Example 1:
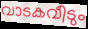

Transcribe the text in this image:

വാടകവീടും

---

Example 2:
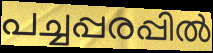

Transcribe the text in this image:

പച്ചപ്പരപ്പിൽ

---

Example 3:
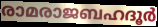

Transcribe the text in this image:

രാമരാജബഹദൂർ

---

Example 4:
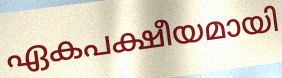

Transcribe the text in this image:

ഏകപക്ഷീയമായി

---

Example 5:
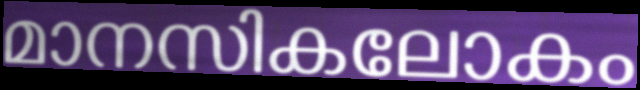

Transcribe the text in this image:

മാനസികലോകം